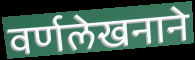
वर्णलेखनाने